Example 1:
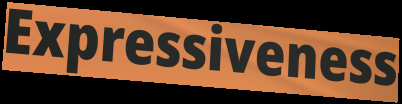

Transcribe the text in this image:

Expressiveness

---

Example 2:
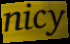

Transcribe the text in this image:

nicy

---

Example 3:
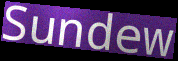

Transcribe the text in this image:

Sundew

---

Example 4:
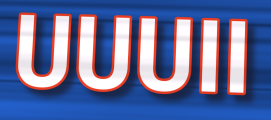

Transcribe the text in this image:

UUUII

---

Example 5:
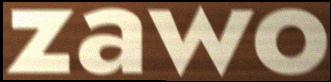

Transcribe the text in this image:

zawo